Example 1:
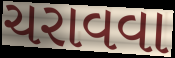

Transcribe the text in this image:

ચરાવવા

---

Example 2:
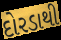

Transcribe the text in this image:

દોરડાથી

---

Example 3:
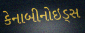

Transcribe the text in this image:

કેનાબીનોઇડ્સ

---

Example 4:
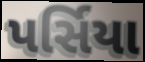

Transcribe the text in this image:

પર્સિયા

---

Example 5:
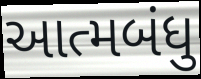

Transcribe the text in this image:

આત્મબંધુ